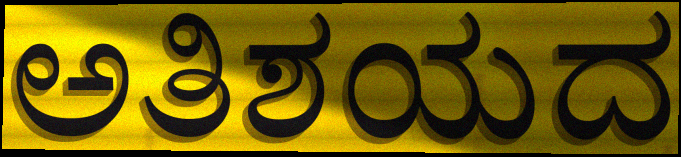
ಅತಿಶಯದ